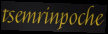
tsemrinpoche